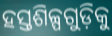
ହସ୍ତଶିଳ୍ପଗୁଡ଼ିକୁ